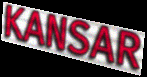
KANSAR